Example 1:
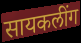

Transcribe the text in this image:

सायकलींग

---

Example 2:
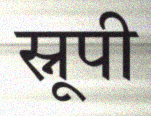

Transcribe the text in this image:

स्नूपी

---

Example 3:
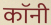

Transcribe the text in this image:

कॉनी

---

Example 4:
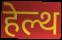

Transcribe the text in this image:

हेल्थ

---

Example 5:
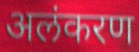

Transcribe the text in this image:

अलंकरण